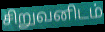
சிறுவனிடம்